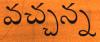
వచ్చన్న